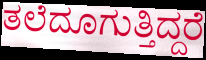
ತಲೆದೂಗುತ್ತಿದ್ದರೆ